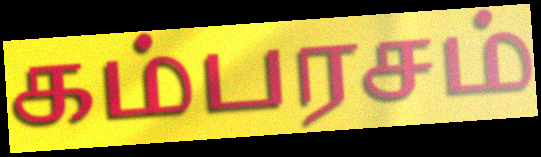
கம்பரசம்